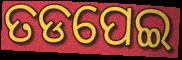
ତଡପେଇ